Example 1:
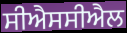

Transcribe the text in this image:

ਸੀਐਸਸੀਐਲ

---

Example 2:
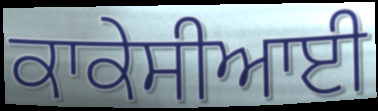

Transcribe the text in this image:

ਕਾਕੇਸੀਆਈ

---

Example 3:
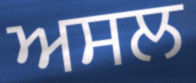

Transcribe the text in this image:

ਅਸਲ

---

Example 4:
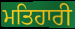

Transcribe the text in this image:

ਮਤਿਹਾਰੀ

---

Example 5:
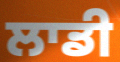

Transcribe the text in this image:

ਲਾਡੀ